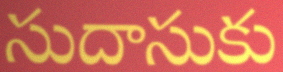
సుదాసుకు